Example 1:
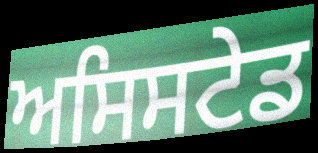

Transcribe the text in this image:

ਅਸਿਸਟੇਡ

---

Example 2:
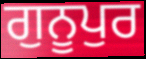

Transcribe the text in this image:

ਗੁਨੂਪੁਰ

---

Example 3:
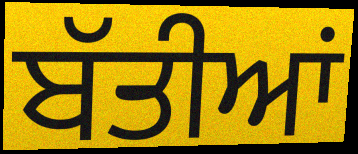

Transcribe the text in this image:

ਬੱਤੀਆਂ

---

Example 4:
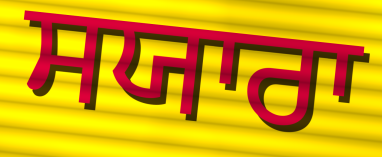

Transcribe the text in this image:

ਸਯਾਰਾ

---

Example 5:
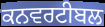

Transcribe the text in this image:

ਕਨਵਰਟੀਬਲ